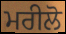
ਮਰੀਲੋ